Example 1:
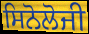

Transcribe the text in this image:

ਸਿਨੋਲੋਜੀ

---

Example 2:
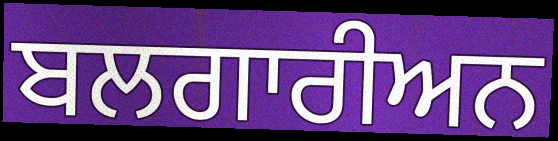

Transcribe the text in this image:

ਬਲਗਾਰੀਅਨ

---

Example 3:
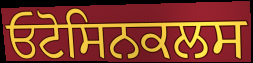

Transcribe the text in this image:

ਓਟੋਸਿਨਕਲਸ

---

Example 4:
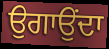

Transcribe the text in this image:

ਉਗਾਉਂਦਾ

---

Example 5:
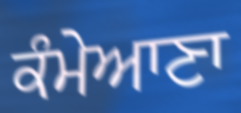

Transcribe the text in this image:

ਕੰਮੇਆਣਾ